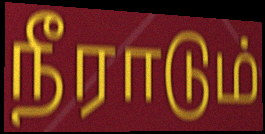
நீராடும்